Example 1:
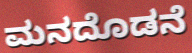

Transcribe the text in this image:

ಮನದೊಡನೆ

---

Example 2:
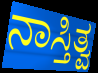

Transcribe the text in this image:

ನಾಸ್ತಿತ್ವ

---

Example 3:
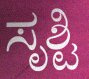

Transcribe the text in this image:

ಸೃಶ್ಟಿ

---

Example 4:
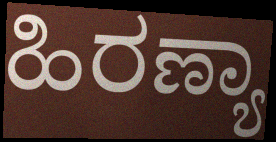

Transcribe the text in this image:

ಹಿರಣ್ಯಾ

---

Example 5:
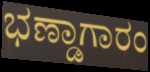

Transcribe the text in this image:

ಭಣ್ಡಾಗಾರಂ